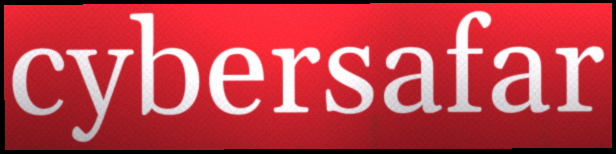
cybersafar